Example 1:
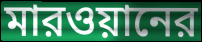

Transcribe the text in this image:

মারওয়ানের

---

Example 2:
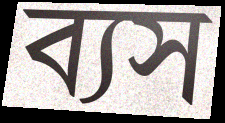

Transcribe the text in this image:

ব্যস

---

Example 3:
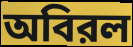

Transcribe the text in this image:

অবিরল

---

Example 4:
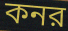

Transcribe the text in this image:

কনর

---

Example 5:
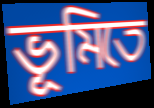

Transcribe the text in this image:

ভূমিতে